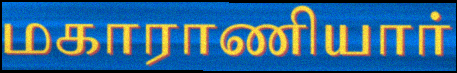
மகாராணியார்